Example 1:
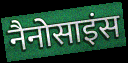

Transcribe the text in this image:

नैनोसाइंस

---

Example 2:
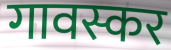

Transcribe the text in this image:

गावस्‍कर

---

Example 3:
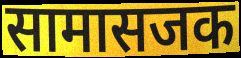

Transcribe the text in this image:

सामासजक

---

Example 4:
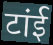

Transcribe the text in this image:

टांई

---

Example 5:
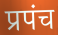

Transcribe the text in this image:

प्रपंच